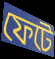
ফেটে